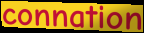
connation